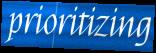
prioritizing